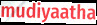
mudiyaatha